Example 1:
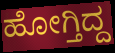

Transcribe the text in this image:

ಹೋಗ್ತಿದ್ದ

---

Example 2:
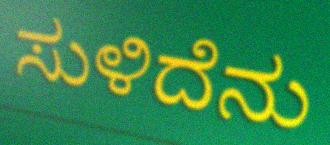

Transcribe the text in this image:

ಸುಳಿದೆನು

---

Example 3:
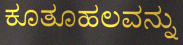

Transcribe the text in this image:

ಕೂತೂಹಲವನ್ನು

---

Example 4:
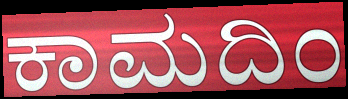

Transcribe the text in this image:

ಕಾಮದಿಂ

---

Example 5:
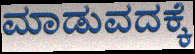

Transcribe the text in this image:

ಮಾಡುವದಕ್ಕೆ